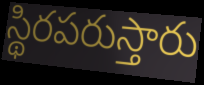
స్థిరపరుస్తారు